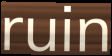
ruin